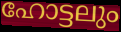
ഹോട്ടലും